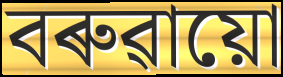
বৰুৱায়ো